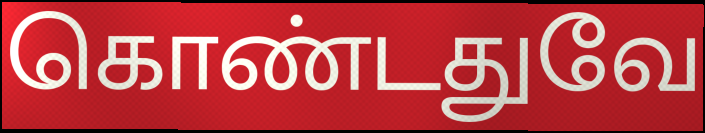
கொண்டதுவே